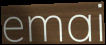
emai